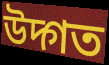
উদ্গত